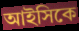
আইসিকে